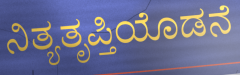
ನಿತ್ಯತೃಪ್ತಿಯೊಡನೆ